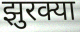
झुरक्या